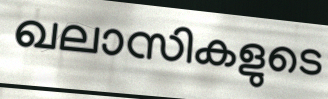
ഖലാസികളുടെ